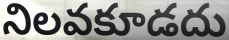
నిలవకూడదు